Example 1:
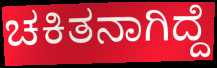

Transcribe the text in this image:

ಚಕಿತನಾಗಿದ್ದೆ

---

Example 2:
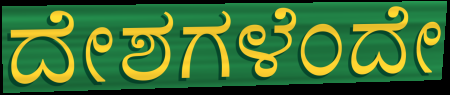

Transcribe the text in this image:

ದೇಶಗಳೆಂದೇ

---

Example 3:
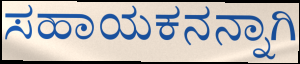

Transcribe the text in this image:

ಸಹಾಯಕನನ್ನಾಗಿ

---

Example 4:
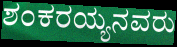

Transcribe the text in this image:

ಶಂಕರಯ್ಯನವರು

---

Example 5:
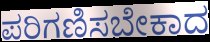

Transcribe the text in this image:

ಪರಿಗಣಿಸಬೇಕಾದ